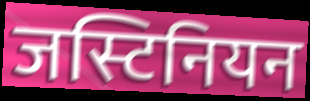
जस्टिनियन